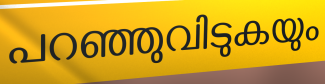
പറഞ്ഞുവിടുകയും